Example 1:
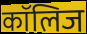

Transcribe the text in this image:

कॉलिज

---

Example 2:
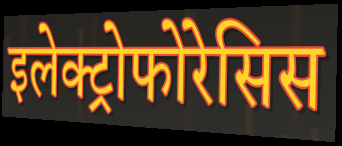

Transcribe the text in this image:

इलेक्ट्रोफोरेसिस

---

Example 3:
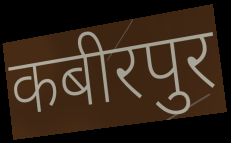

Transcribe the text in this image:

कबीरपुर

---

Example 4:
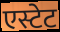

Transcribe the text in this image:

एस्टेट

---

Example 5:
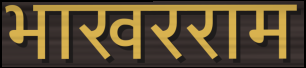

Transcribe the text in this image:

भाखरराम